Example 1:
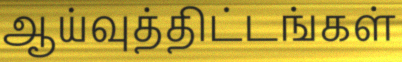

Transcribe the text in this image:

ஆய்வுத்திட்டங்கள்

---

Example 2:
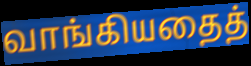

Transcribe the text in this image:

வாங்கியதைத்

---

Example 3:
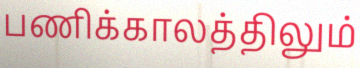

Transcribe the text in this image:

பணிக்காலத்திலும்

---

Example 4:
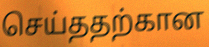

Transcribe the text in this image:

செய்ததற்கான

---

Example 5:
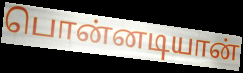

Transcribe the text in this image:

பொன்னடியான்